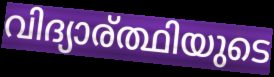
വിദ്യാര്ത്ഥിയുടെ